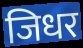
जिधर